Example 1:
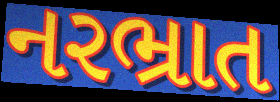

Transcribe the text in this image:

નરભ્રાત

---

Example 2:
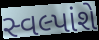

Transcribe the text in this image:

સ્વલ્પાંશે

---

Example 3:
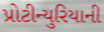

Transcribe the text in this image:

પ્રોટીન્યુરિયાની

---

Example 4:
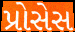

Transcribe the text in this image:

પ્રોસેસ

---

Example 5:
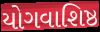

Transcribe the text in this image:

યોગવાશિષ્ઠ